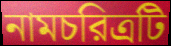
নামচরিত্রটি